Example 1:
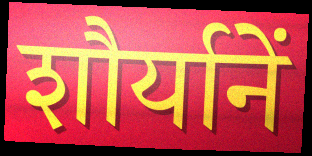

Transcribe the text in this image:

शौर्यानें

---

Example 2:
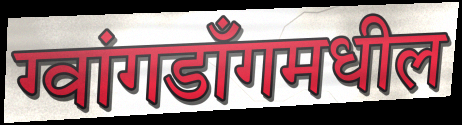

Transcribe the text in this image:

ग्वांगडाँगमधील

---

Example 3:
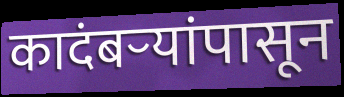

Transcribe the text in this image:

कादंबऱ्यांपासून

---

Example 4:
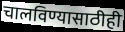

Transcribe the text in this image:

चालविण्यासाठीही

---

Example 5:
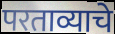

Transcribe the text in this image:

परताव्याचे